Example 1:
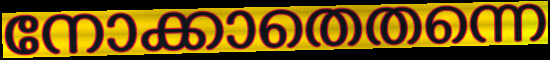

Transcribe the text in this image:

നോക്കാതെതന്നെ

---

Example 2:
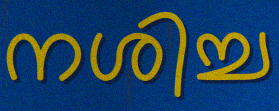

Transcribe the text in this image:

നശിച്ച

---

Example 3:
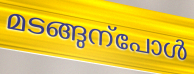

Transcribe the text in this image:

മടങ്ങുന്പോൾ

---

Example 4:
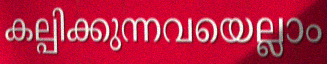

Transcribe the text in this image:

കല്പിക്കുന്നവയെല്ലാം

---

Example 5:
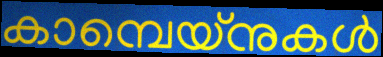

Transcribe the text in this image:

കാമ്പെയ്നുകൾ